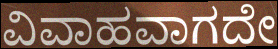
ವಿವಾಹವಾಗದೇ